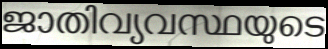
ജാതിവ്യവസ്ഥയുടെ